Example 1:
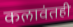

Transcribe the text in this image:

कलावंतही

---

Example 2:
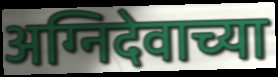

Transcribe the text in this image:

अग्निदेवाच्या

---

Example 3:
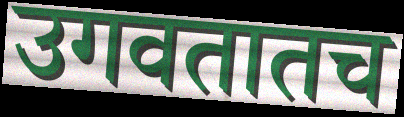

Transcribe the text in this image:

उगवतातच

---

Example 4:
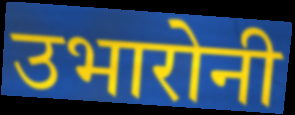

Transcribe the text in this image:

उभारोनी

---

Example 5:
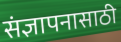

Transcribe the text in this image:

संज्ञापनासाठी